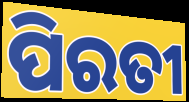
ପିରତୀ